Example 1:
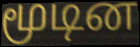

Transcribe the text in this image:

மூடின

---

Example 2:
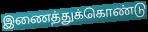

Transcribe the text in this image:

இணைத்துக்கொண்டு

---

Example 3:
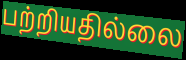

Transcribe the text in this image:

பற்றியதில்லை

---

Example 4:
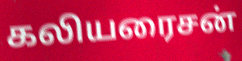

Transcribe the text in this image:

கலியரைசன்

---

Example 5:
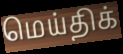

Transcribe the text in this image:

மெய்திக்